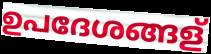
ഉപദേശങ്ങള്